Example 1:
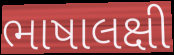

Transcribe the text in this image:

ભાષાલક્ષી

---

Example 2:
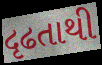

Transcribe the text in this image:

દૃઢતાથી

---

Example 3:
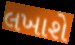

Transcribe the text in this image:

લખાશે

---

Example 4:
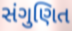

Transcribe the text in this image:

સંગુણિત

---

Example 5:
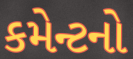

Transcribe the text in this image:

કમેન્ટનો